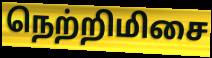
நெற்றிமிசை